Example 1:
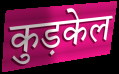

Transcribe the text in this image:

कुड़केल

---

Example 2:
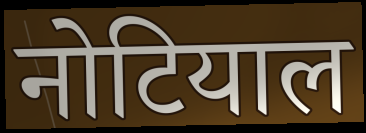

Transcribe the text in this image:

नोटियाल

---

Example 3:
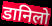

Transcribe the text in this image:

डानिलो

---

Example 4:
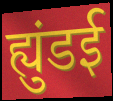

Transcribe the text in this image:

ह्युंडई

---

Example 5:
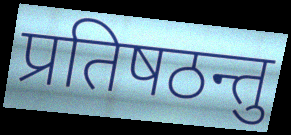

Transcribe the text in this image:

प्रतिषठन्तु